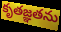
కృతజ్ఞతను